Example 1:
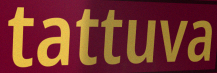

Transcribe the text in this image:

tattuva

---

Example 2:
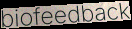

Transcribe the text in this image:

biofeedback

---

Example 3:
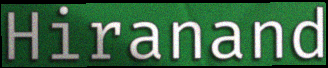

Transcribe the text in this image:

Hiranand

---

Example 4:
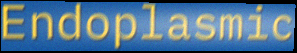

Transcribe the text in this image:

Endoplasmic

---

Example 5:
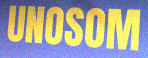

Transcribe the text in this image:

UNOSOM